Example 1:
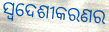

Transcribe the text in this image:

ସ୍ୱଦେଶୀକରଣର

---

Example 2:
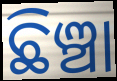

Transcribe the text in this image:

ଛିଞ୍ଚା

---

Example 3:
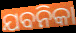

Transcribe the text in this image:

ଯବନିକା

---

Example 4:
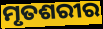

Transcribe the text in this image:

ମୃତଶରୀର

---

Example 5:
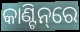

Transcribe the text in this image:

କାଣ୍ଟିନ୍‌ରେ